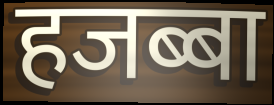
हजब्बा